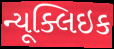
ન્યૂક્લિઇક